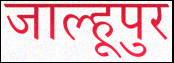
जाल्हूपुर